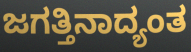
ಜಗತ್ತಿನಾದ್ಯಂತ